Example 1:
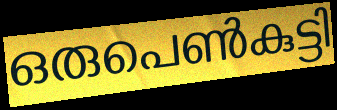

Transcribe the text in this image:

ഒരുപെൺകുട്ടി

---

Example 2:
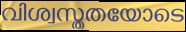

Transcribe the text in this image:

വിശ്വസ്തതയോടെ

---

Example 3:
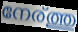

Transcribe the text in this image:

നേര്ത്തു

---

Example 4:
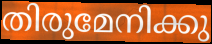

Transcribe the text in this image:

തിരുമേനിക്കു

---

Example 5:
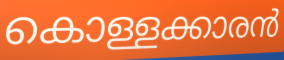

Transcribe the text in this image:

കൊള്ളക്കാരൻ